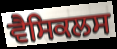
ਵੈਸਿਕਲਸ